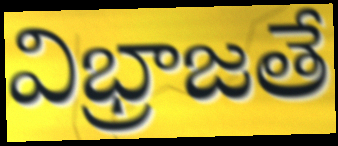
విభ్రాజతే